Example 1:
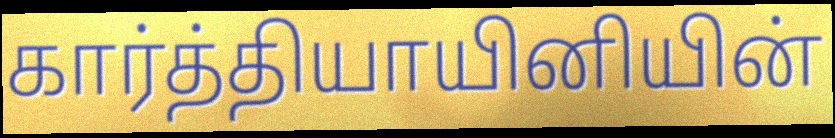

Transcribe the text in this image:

கார்த்தியாயினியின்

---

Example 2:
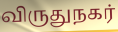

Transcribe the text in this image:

விருதுநகர்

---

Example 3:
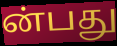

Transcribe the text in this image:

ன்பது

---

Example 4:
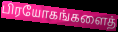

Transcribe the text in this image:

பிரயோகங்களைத்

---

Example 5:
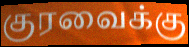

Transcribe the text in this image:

குரவைக்கு